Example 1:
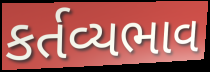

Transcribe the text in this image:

કર્તવ્યભાવ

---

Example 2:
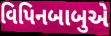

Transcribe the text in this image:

વિપિનબાબુએ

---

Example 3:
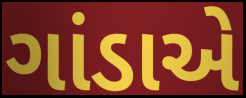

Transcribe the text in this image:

ગાંડાએ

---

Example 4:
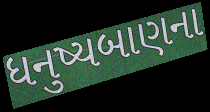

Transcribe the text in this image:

ધનુષ્યબાણના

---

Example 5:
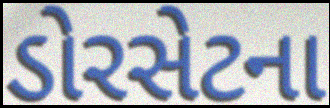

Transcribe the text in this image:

ડોરસેટના